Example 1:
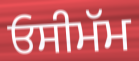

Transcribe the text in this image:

ਓਸੀਮੱਮ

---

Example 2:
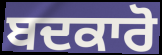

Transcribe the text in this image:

ਬਦਕਾਰੋ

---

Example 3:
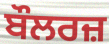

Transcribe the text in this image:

ਬੌਲਰਜ਼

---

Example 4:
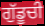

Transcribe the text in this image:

ਗੁੱਡੂਚੀ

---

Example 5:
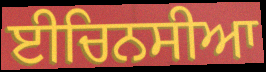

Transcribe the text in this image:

ਈਚਿਨਸੀਆ